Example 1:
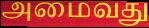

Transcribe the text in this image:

அமைவது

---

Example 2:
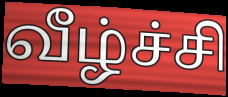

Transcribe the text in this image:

வீழ்ச்சி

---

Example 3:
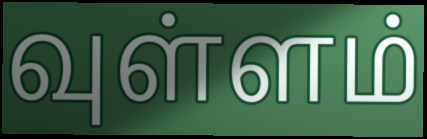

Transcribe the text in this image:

வுள்ளம்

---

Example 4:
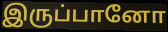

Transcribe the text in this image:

இருப்பானோ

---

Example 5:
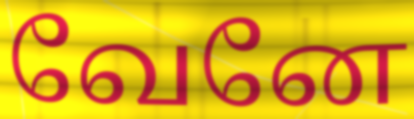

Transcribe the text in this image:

வேனே